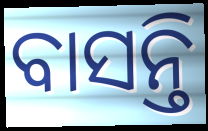
ବାସନ୍ତି